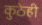
कुठेही